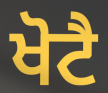
ਖੋਟੈ